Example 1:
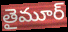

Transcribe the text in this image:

తైమూర్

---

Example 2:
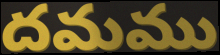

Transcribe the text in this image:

దమము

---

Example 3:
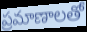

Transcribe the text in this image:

ప్రమాణాలతో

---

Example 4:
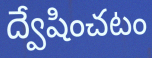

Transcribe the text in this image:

ద్వేషించటం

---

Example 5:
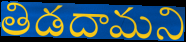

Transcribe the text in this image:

తిడదామని